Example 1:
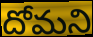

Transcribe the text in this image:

దోమని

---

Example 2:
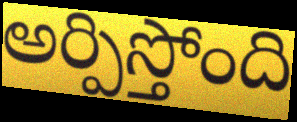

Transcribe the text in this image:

అర్పిస్తోంది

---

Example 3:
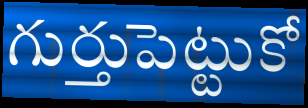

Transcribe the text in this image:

గుర్తుపెట్టుకో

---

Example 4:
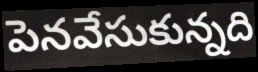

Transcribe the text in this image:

పెనవేసుకున్నది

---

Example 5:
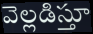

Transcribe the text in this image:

వెల్లడిస్తూ